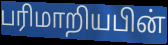
பரிமாறியபின்